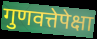
गुणवत्तेपेक्षा